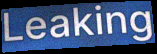
Leaking